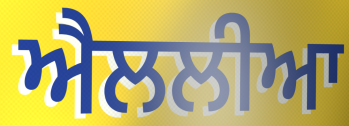
ਐਲਲੀਆ